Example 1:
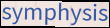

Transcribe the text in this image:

symphysis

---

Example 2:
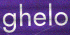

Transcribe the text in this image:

ghelo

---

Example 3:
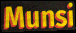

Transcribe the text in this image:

Munsi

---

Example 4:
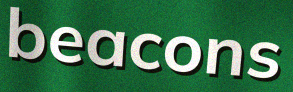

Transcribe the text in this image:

beacons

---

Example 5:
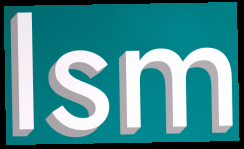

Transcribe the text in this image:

Ism